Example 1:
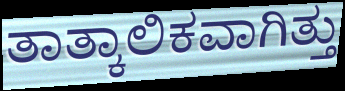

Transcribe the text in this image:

ತಾತ್ಕಾಲಿಕವಾಗಿತ್ತು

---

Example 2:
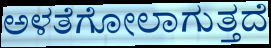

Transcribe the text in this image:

ಅಳತೆಗೋಲಾಗುತ್ತದೆ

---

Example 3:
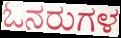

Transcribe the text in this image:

ಓನರುಗಳ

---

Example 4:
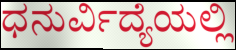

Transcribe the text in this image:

ಧನುರ್ವಿದ್ಯೆಯಲ್ಲಿ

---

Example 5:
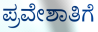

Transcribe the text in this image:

ಪ್ರವೇಶಾತಿಗೆ